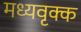
मध्यवृक्क